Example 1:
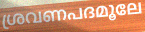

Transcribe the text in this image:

ശ്രവണപദമൂലേ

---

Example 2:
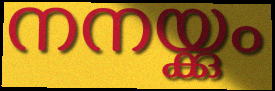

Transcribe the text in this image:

നനയ്ക്കും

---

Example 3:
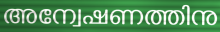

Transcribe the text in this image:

അന്വേഷണത്തിനു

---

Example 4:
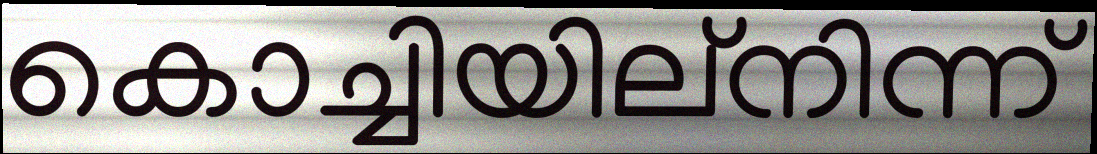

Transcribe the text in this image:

കൊച്ചിയില്നിന്ന്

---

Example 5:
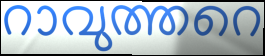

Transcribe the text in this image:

റാവുത്തറെ